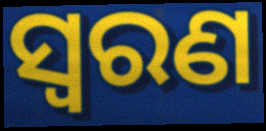
ସ୍ୱରଣ